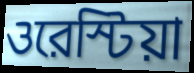
ওরেস্টিয়া